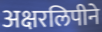
अक्षरलिपीने